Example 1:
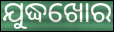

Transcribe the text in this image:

ଯୁଦ୍ଧଖୋର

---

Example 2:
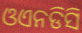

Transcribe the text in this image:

ଓଏନଡିସି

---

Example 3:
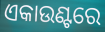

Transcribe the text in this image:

ଏକାଉଣ୍ଟରେ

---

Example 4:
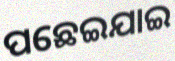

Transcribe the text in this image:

ପଛେଇଯାଇ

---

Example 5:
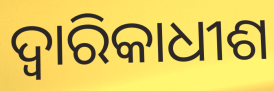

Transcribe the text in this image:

ଦ୍ୱାରିକାଧୀଶ